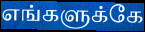
எங்களுக்கே